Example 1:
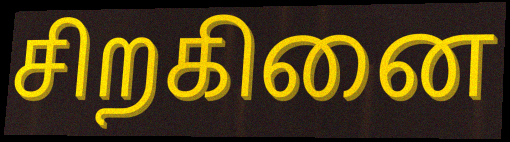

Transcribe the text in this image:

சிறகினை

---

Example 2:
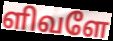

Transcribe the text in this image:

ளிவளே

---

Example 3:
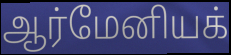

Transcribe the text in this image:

ஆர்மேனியக்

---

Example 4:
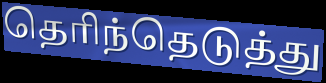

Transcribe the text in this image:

தெரிந்தெடுத்து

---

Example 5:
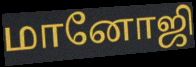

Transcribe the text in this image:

மானோஜி